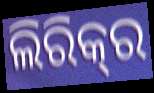
ଲିରିକ୍‍ର